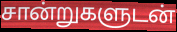
சான்றுகளுடன்